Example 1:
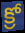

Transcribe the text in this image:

క్రో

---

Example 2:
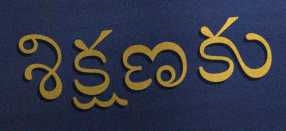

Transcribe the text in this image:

శిక్షణకు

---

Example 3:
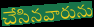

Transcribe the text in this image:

చేసినవారును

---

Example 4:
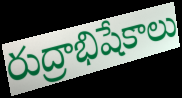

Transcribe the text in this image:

రుద్రాభిషేకాలు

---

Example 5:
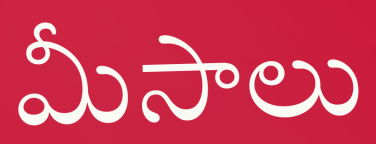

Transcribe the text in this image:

మీసాలు